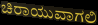
ಚಿರಾಯುವಾಗಲಿ